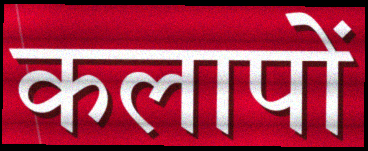
कलापों